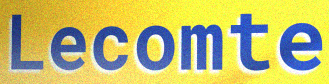
Lecomte